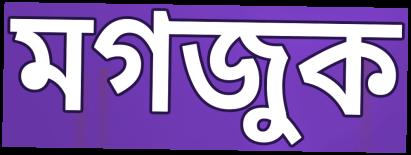
মগজুক